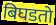
बिघडतो